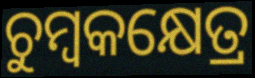
ଚୁମ୍ବକକ୍ଷେତ୍ର